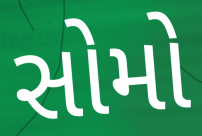
સોમો